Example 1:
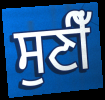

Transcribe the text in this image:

ਸੁਣੀਁ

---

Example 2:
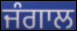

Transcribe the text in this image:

ਜੰਗਾਲ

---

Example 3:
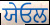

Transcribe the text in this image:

ਯੇਓਲ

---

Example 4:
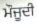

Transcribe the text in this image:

ਮੌਜੂਦੀ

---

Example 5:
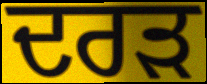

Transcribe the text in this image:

ਦਰੜ